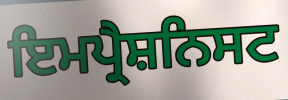
ਇਮਪ੍ਰੈਸ਼ਨਿਸਟ